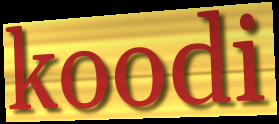
koodi